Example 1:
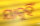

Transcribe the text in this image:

ୟାକୁହିଁ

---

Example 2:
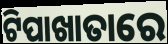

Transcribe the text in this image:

ଟିପାଖାତାରେ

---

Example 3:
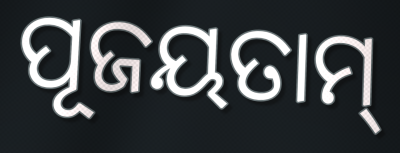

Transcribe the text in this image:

ପୂଜୟତାମ୍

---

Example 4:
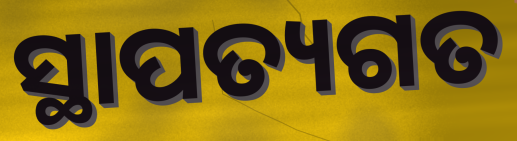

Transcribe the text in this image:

ସ୍ଥାପତ୍ୟଗତ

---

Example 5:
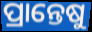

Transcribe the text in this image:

ପ୍ରାନ୍ତେଷୁ